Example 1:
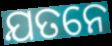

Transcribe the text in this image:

ଯତନେ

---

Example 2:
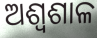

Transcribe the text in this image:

ଅଶ୍ୱଶାଳ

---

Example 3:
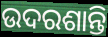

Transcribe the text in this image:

ଉଦରଶାନ୍ତି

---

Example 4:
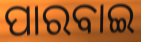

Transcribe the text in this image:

ପାରବାଇ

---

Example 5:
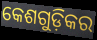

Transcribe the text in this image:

କେଶଗୁଡ଼ିକର